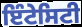
ਇੰਟੇਸਿਟੀ